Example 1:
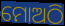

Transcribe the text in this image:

ମୋଅଠି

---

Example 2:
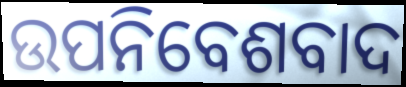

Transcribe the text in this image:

ଉପନିବେଶବାଦ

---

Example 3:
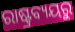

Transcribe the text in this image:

ରାଷ୍ଟ୍ରବ୍ୟୟରୁ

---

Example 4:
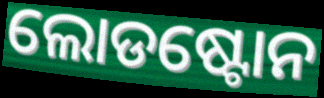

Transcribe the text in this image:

ଲୋଡଷ୍ଟୋନ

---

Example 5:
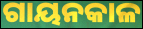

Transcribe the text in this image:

ଗାୟନକାଳ